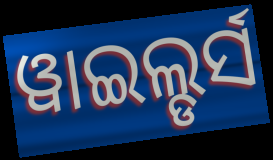
ୱାଇଲ୍ଡର୍ସ